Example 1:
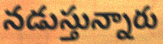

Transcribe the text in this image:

నడుస్తున్నారు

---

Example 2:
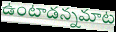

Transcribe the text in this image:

ఉంటాడన్నమాట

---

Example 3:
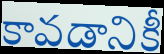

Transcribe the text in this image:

కావడానికీ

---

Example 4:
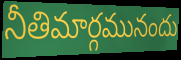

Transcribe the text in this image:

నీతిమార్గమునందు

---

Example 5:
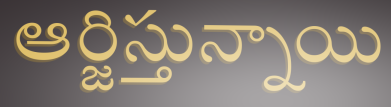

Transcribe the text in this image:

ఆర్జిస్తున్నాయి